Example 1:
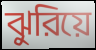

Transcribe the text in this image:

ঝুরিয়ে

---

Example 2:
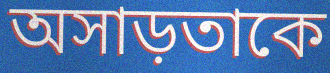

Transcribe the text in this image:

অসাড়তাকে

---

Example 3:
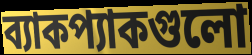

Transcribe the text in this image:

ব্যাকপ্যাকগুলো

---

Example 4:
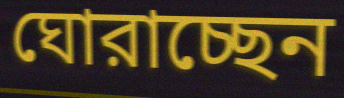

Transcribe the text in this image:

ঘোরাচ্ছেন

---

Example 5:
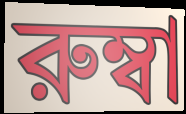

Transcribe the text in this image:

রুম্বা